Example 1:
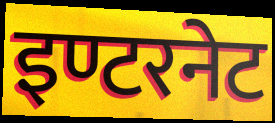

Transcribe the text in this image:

इण्टरनेट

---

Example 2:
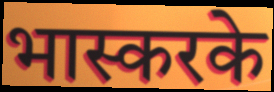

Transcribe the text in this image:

भास्करके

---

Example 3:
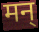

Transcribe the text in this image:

मन्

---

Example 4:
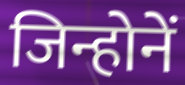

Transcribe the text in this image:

जिन्होनें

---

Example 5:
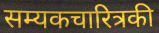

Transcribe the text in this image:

सम्यकचारित्रकी